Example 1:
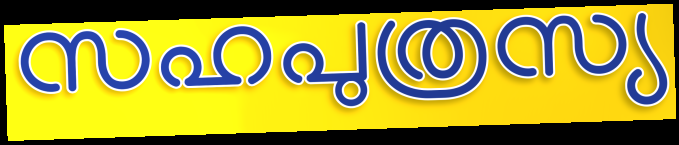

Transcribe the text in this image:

സഹപുത്രസ്യ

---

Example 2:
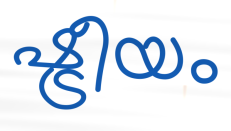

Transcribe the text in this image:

ഷ്ട്രീയം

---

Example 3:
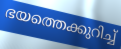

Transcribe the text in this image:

ഭയത്തെക്കുറിച്ച്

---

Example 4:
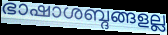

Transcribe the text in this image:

ഭാഷാശബ്ദങ്ങളല്ല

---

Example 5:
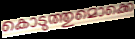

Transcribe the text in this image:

കൊടുത്തുമൊക്കെ